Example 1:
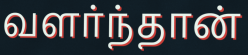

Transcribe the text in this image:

வளர்ந்தான்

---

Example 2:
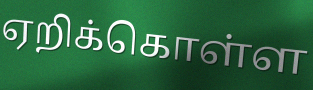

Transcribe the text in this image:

ஏறிக்கொள்ள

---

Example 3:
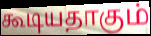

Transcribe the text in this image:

கூடியதாகும்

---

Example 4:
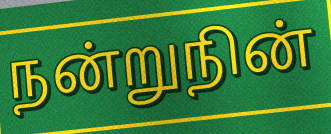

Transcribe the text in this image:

நன்றுநின்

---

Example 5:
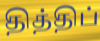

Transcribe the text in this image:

தித்திப்